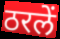
ठरलें